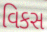
વિકસ